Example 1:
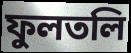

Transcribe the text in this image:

ফুলতলি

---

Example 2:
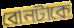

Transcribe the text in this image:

বোনটাকে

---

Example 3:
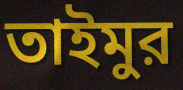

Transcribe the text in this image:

তাইমুর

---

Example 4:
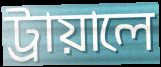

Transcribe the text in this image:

ট্রায়ালে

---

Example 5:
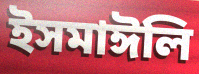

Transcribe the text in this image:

ইসমাঈলি